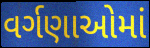
વર્ગણાઓમાં